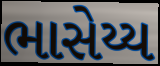
ભાસેય્ય